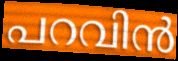
പറവിൻ